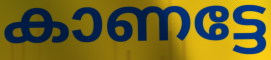
കാണട്ടേ